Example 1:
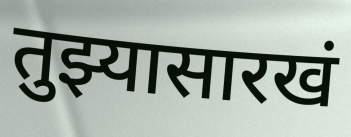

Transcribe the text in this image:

तुझ्यासारखं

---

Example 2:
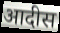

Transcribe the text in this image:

आदीस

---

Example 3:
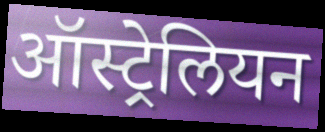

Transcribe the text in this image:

ऑस्ट्रेलियन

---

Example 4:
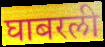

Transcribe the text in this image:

घाबरली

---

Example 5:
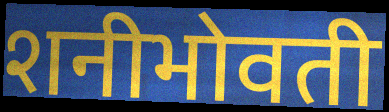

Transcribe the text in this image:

शनीभोवती